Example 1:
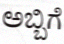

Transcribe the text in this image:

ಅಬ್ಬಿಗೆ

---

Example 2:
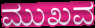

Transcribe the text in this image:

ಮುಖವ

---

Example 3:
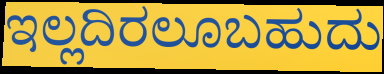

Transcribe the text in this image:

ಇಲ್ಲದಿರಲೂಬಹುದು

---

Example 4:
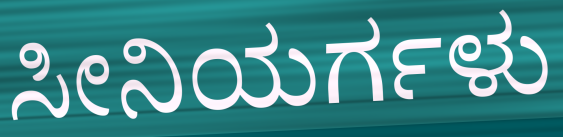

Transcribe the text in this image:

ಸೀನಿಯರ್ಗಳು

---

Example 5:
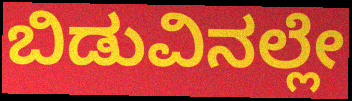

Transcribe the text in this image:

ಬಿಡುವಿನಲ್ಲೇ